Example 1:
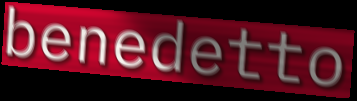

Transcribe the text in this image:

benedetto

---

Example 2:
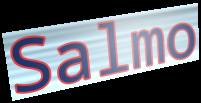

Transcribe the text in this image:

Salmo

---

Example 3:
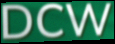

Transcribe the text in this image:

DCW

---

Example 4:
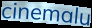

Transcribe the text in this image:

cinemalu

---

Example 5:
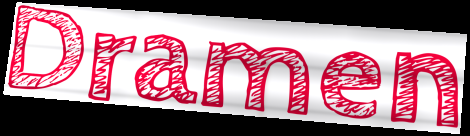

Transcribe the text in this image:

Dramen